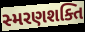
સ્મરણશક્તિ